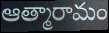
ఆత్మారామం